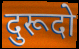
दुरूदो